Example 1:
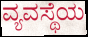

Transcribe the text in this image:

ವ್ಯವಸ್ಥೆಯ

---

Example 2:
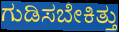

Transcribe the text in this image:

ಗುಡಿಸಬೇಕಿತ್ತು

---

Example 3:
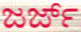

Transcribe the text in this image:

ಜರ್ಜ್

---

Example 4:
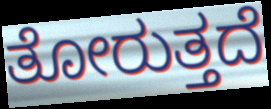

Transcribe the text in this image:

ತೋರುತ್ತದೆ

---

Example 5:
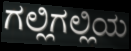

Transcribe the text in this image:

ಗಲ್ಲಿಗಲ್ಲಿಯ